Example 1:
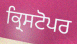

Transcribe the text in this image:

ਕ੍ਰਿਸਟੋਪਰ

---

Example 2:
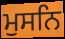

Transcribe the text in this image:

ਮੁਸਨਿ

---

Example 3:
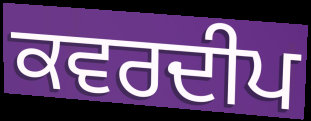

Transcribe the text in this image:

ਕਵਰਦੀਪ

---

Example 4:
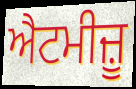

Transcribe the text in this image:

ਐਟਮੀਜ਼ੂ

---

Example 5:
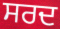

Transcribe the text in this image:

ਸਰਦ